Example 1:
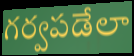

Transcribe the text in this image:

గర్వపడేలా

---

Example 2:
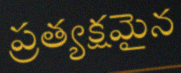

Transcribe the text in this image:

ప్రత్యక్షమైన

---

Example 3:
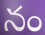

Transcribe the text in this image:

నం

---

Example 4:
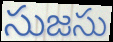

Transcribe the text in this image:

సుజసు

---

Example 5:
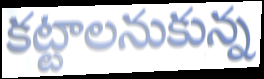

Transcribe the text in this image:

కట్టాలనుకున్న